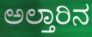
ಅಲ್ತಾರಿನ